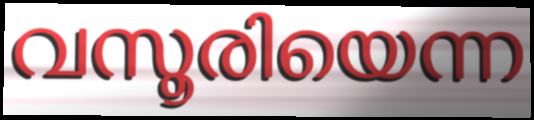
വസൂരിയെന്ന